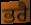
ਭਰੈ